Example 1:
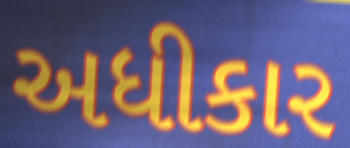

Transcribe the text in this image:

અધીકાર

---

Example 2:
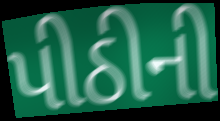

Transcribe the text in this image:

પીઠીની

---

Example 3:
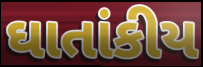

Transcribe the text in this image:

ઘાતાંકીય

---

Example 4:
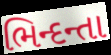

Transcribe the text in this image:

ભિન્દન્તા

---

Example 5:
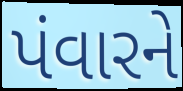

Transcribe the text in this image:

પંવારને